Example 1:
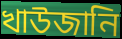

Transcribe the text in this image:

খাউজানি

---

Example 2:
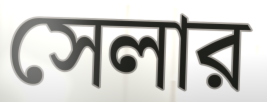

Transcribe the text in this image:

সেলার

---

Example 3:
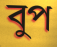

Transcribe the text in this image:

বুপ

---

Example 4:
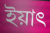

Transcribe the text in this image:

ইয়াৎ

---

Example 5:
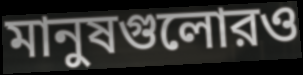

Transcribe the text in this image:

মানুষগুলোরও